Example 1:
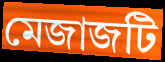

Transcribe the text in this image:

মেজাজটি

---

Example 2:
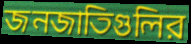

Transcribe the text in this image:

জনজাতিগুলির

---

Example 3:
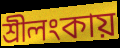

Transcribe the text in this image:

শ্রীলংকায়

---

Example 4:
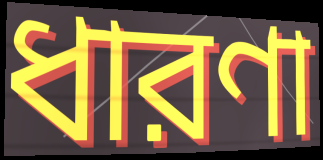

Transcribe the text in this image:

ধারণা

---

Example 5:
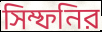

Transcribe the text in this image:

সিম্ফনির